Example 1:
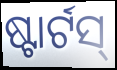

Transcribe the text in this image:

ଷ୍ଟାର୍ଟସ୍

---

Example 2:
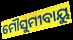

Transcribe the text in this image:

ମୌସୁମୀବାୟୁ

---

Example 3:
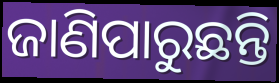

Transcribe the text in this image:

ଜାଣିପାରୁଛନ୍ତି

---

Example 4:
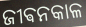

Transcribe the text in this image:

ଜୀଵନକାଳ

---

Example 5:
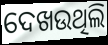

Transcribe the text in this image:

ଦେଖଉଥିଲି